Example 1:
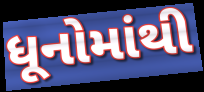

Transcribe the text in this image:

ધૂનોમાંથી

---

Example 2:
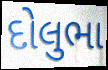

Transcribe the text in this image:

દોલુભા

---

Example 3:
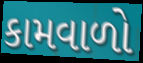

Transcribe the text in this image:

કામવાળો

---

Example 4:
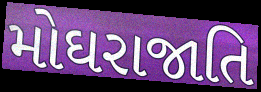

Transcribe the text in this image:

મોઘરાજાતિ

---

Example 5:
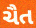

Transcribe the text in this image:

ચૈત